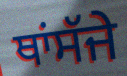
ਥਾਂਸੱਜੇ